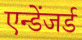
एन्डेंजर्ड